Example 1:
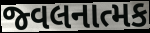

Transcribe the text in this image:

જ્વલનાત્મક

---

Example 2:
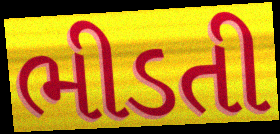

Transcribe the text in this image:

ભીડતી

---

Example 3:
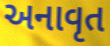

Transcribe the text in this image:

અનાવૃત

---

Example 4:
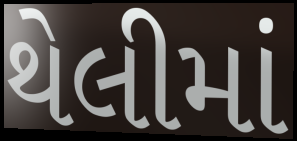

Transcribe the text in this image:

થેલીમાં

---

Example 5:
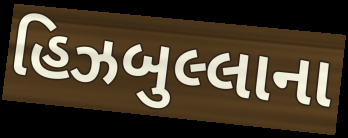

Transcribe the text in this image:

હિઝબુલ્લાના